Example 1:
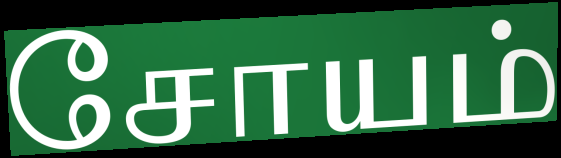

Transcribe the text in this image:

சோயம்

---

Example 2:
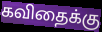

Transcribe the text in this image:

கவிதைக்கு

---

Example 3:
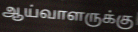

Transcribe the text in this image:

ஆய்வாளருக்கு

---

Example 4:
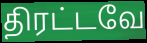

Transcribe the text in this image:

திரட்டவே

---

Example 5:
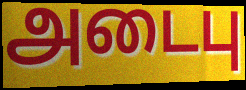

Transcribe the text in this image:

அடைபு